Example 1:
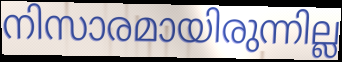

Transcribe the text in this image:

നിസാരമായിരുന്നില്ല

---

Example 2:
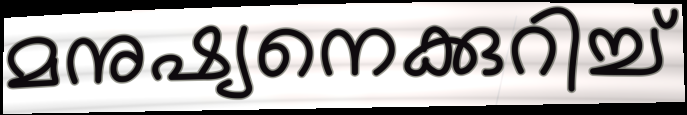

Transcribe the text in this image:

മനുഷ്യനെക്കുറിച്ച്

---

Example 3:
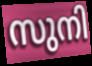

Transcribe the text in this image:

സുനി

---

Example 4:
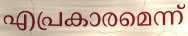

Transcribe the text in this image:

എപ്രകാരമെന്ന്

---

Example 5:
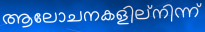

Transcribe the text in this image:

ആലോചനകളില്നിന്ന്